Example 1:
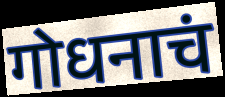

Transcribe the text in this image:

गोधनाचं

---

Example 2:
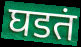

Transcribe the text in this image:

घडतं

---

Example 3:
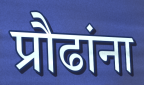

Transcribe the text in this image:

प्रौढांना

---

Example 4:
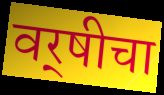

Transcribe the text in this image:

वर्षीचा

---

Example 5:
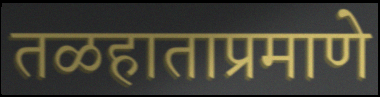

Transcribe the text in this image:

तळहाताप्रमाणे